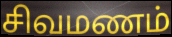
சிவமணம்